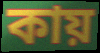
কায়